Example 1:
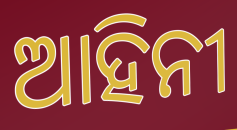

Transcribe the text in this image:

ଆହିନୀ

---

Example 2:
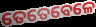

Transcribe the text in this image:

ତେତେବେଳେ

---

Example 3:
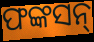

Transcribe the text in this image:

ଫଙ୍କସନ୍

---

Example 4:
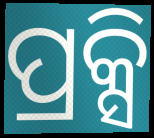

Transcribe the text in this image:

ପ୍ରକ୍ସି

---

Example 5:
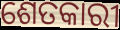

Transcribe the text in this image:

ଶେତକାରୀ